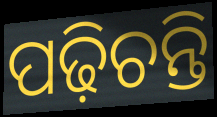
ପଢ଼ିଚନ୍ତି